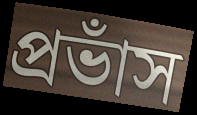
প্রভাঁস